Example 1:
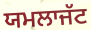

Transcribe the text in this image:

ਯਮਲਾਜੱਟ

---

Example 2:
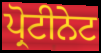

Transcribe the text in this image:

ਪ੍ਰੋਟੀਨੇਟ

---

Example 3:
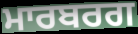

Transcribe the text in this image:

ਮਾਰਬਰਗ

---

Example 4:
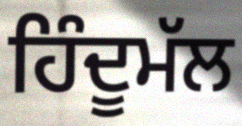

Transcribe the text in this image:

ਹਿੰਦੂਮੱਲ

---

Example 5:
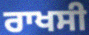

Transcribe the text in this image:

ਰਾਖਸੀ